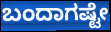
ಬಂದಾಗಷ್ಟೇ